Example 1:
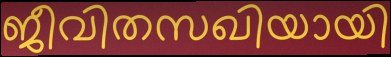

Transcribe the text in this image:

ജീവിതസഖിയായി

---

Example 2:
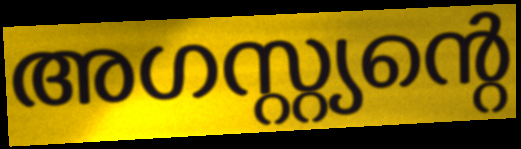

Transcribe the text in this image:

അഗസ്റ്റ്യന്റെ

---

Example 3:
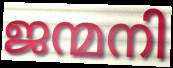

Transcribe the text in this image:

ജന്മനി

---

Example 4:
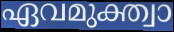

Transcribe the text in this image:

ഏവമുക്ത്വാ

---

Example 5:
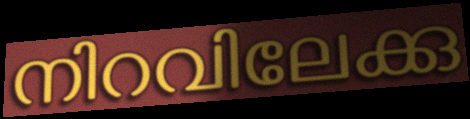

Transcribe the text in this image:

നിറവിലേക്കു